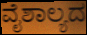
ವೈಶಾಲ್ಯದ